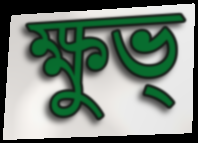
ক্ষুভ্